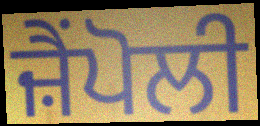
ਜ਼ੈਂਪੋਲੀ